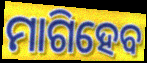
ମାଗିହେବ